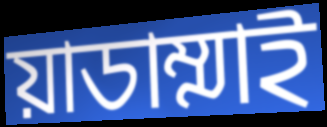
য়াডাম্মাই